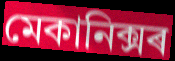
মেকানিক্সৰ